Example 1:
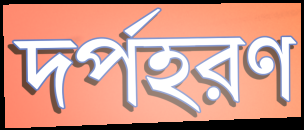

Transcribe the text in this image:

দর্পহরণ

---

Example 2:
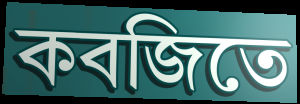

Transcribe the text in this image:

কবজিতে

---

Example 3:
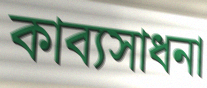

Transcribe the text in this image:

কাব্যসাধনা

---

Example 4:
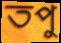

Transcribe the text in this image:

তপু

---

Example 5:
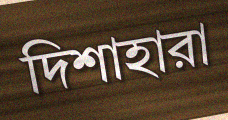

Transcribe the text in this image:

দিশাহারা